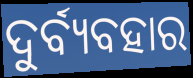
ଦୁର୍ବ୍ୟବହାର